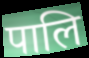
पालि